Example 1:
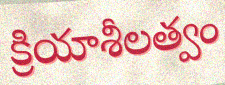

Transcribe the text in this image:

క్రియాశీలత్వం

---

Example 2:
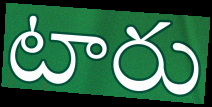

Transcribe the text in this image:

టారు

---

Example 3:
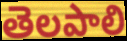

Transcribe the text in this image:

తెలపాలి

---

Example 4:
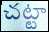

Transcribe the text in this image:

చట్టా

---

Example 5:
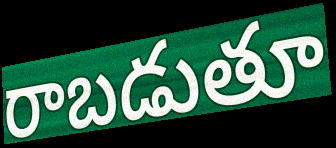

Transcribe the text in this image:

రాబడుతూ